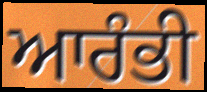
ਆਰੰਭੀ